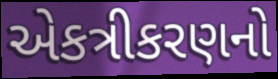
એકત્રીકરણનો